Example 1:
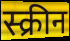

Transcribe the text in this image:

स्क्रीन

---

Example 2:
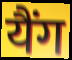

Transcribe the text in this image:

यैंग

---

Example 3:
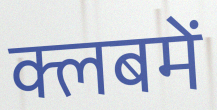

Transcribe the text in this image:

क्लबमें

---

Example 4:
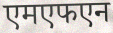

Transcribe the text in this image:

एमएफएन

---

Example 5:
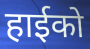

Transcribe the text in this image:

हाईको